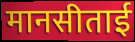
मानसीताई